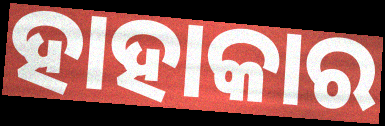
ହାହାକାର